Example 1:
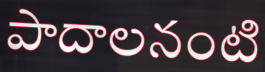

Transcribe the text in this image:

పాదాలనంటి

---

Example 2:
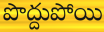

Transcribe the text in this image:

పొద్దుపోయి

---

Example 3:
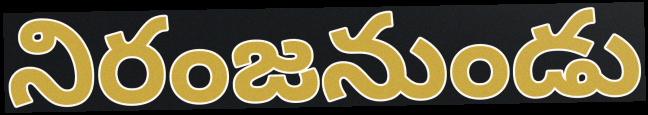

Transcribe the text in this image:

నిరంజనుండు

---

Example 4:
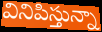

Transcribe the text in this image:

వినిపిస్తున్నా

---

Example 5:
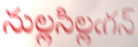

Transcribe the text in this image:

నుల్లసిల్లఁగన్